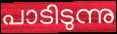
പാടിടുന്നു